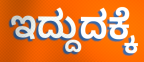
ಇದ್ದುದಕ್ಕೆ